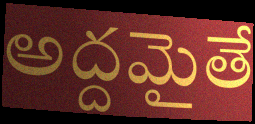
అద్దమైతే